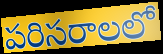
పరిసరాలలో